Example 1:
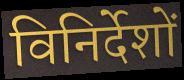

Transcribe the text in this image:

विनिर्देशों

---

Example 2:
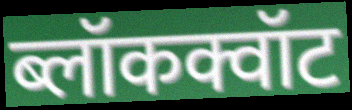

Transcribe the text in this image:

ब्लॉकक्वॉट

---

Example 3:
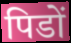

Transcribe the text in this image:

पिडों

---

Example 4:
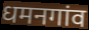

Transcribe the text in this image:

धमनगांव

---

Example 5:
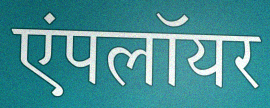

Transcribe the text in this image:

एंपलॉयर